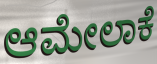
ಆಮೇಲಾಕೆ